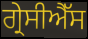
ਗ੍ਰੇਸੀਐੱਸ